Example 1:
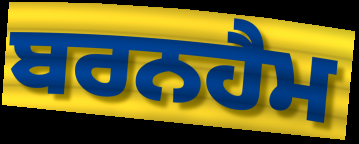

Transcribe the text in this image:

ਬਰਨਹੈਮ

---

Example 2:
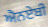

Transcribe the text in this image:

ਐਨਏਬੀ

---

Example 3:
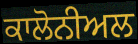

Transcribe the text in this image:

ਕਾਲੋਨੀਅਲ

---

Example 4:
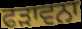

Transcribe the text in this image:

ਫੜਾਵਨਾ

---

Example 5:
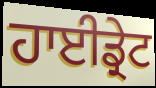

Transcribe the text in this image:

ਹਾਈਡ੍ਰੇਟ